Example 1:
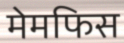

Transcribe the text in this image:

मेमफिस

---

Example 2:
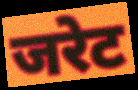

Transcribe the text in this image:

जरेट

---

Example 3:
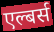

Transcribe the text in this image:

एल्बर्स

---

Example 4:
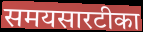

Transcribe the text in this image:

समयसारटीका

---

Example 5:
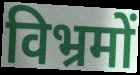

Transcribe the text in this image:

विभ्रमों